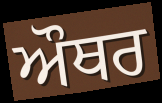
ਔਥਰ